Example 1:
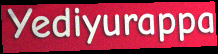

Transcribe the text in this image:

Yediyurappa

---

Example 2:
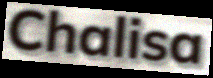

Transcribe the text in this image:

Chalisa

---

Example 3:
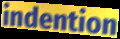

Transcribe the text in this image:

indention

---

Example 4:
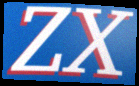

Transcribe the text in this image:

ZX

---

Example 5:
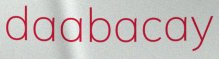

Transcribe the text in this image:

daabacay